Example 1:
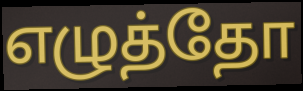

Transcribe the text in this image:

எழுத்தோ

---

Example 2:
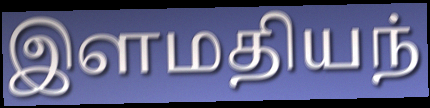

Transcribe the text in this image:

இளமதியந்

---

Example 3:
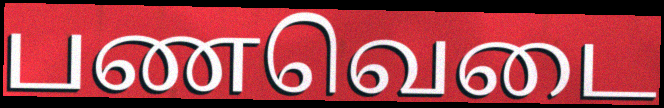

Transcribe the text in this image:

பணவெடை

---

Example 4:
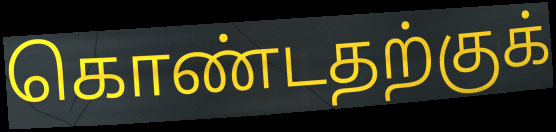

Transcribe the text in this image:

கொண்டதற்குக்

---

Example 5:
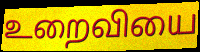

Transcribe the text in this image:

உறைவியை